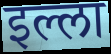
इल्ला